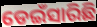
ଡେଇଁସାରିଛି